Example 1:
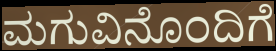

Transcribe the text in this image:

ಮಗುವಿನೊಂದಿಗೆ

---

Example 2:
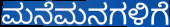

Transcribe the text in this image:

ಮನೆಮನಗಳಿಗೆ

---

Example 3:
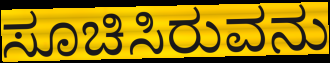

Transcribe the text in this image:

ಸೂಚಿಸಿರುವನು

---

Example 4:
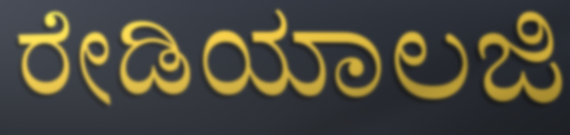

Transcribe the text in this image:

ರೇಡಿಯಾಲಜಿ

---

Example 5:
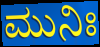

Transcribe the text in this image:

ಮುನಿಃ